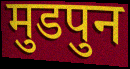
मुडपुन